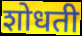
शोधती